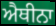
ਐਥੀਨਾ